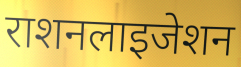
राशनलाइजेशन